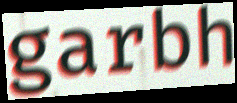
garbh